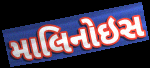
માલિનોઇસ